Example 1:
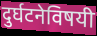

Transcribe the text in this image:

दुर्घटनेविषयी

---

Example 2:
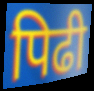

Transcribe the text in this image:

पिढी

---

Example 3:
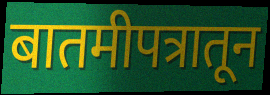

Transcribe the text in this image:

बातमीपत्रातून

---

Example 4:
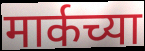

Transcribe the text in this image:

मार्कच्या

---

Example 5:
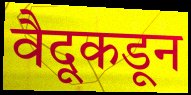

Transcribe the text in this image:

वैदूकडून